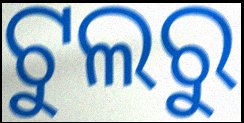
ଟୁଲରୁ